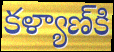
కళ్యాణ్‍కి